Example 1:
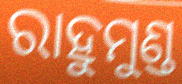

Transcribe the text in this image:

ରାହୁମୁଣ୍ଡ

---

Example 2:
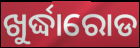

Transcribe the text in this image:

ଖୁର୍ଦ୍ଧାରୋଡ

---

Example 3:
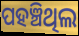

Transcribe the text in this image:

ପହଞ୍ଚିଥିଲ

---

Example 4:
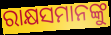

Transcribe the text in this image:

ରାକ୍ଷସମାନଙ୍କୁ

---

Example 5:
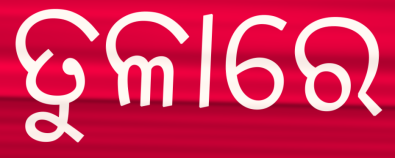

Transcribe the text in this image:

ତୁଳାରେ